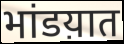
भांडय़ात